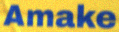
Amake